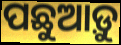
ପଛୁଆଡ଼ୁ